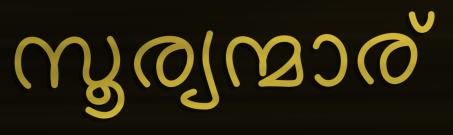
സൂര്യന്മാര്